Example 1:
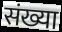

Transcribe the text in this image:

संख्या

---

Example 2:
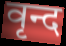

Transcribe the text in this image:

वृन्द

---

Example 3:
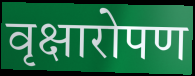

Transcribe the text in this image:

वृक्षारोपण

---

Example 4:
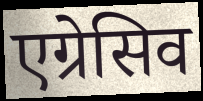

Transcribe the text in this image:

एग्रेसिव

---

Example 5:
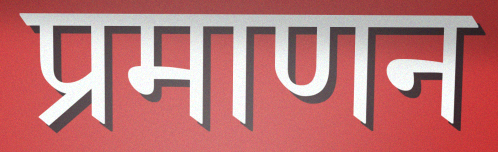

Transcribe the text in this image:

प्रमाणन